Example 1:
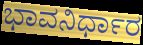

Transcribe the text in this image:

ಭಾವನಿರ್ಧಾರ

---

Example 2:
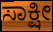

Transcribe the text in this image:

ಸಾಕ್ಷೀ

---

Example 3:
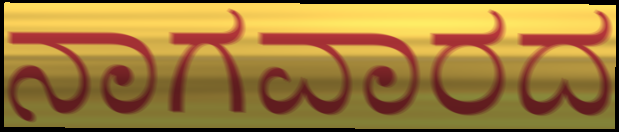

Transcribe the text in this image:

ನಾಗವಾರದ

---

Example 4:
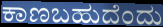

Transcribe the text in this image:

ಕಾಣಬಹುದೆಂದು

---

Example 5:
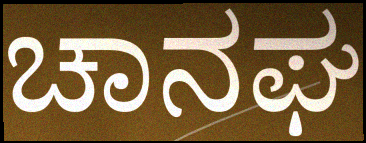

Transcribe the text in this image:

ಚಾನಘ